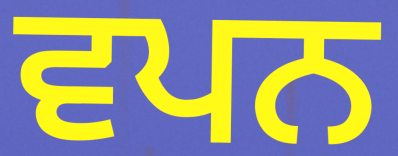
ਵਪਨ